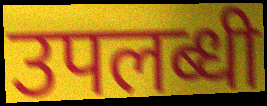
उपलब्धी